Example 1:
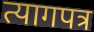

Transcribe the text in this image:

त्यागपत्र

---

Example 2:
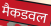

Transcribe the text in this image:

मैकडवल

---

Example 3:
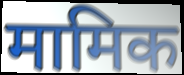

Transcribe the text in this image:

मामिक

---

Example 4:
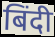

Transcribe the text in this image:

बिंदी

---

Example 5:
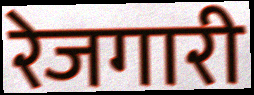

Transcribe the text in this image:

रेजगारी